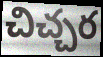
చిచ్చర